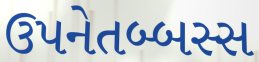
ઉપનેતબ્બસ્સ